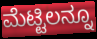
ಮೆಟ್ಟಿಲನ್ನೂ